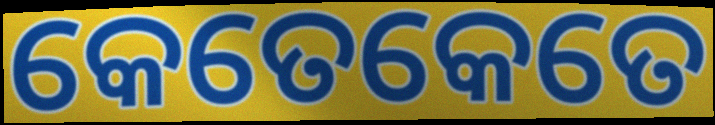
କେତେକେତେ